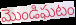
మొండిఘటం